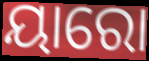
ୟାରୋ